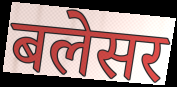
बलेसर